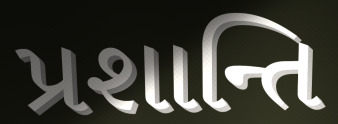
પ્રશાન્તિ